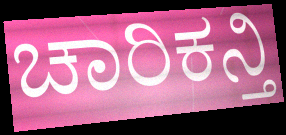
ಚಾರಿಕನ್ತಿ